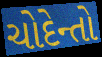
ચોદેન્તો